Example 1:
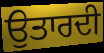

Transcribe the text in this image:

ਉਤਾਰਦੀ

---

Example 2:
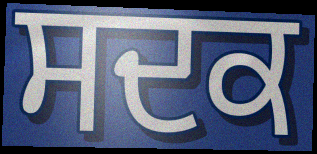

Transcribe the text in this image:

ਸਦਕ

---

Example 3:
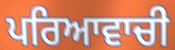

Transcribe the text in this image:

ਪਰਿਆਵਾਚੀ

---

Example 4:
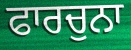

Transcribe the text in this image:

ਫਾਰਚੁਨਾ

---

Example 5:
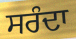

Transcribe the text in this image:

ਸਰੰਦਾ